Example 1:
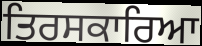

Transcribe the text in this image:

ਤਿਰਸਕਾਰਿਆ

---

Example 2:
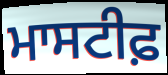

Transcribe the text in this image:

ਮਾਸਟੀਫ਼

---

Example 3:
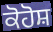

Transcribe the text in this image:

ਕੋਹੋਸ਼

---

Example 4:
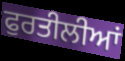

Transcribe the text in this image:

ਫੁਰਤੀਲੀਆਂ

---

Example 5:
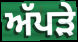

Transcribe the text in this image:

ਅੱਪੜੇ